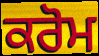
ਕਰੋਮ